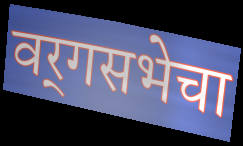
वर्गसभेचा